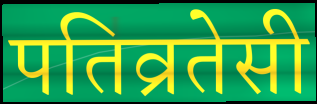
पतिव्रतेसी